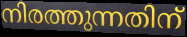
നിരത്തുന്നതിന്